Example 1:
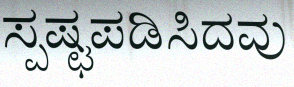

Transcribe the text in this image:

ಸ್ಪಷ್ಟಪಡಿಸಿದವು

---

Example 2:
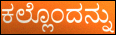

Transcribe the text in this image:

ಕಲ್ಲೊಂದನ್ನು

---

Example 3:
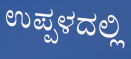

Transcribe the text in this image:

ಉಪ್ಪಳದಲ್ಲಿ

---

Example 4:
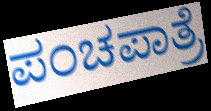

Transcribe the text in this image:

ಪಂಚಪಾತ್ರೆ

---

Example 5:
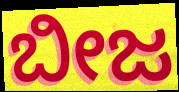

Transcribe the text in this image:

ಬೀಜ